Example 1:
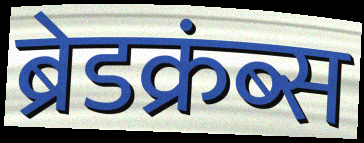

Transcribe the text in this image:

ब्रेडक्रंब्स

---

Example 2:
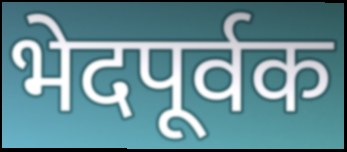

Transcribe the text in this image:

भेदपूर्वक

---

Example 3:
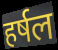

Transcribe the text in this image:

हर्षल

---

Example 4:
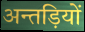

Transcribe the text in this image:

अन्तड़ियों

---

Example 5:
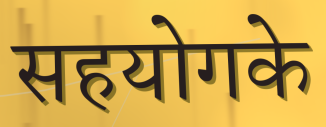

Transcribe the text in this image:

सहयोगके